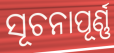
ସୂଚନାପୂର୍ଣ୍ଣ